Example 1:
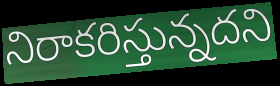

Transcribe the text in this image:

నిరాకరిస్తున్నదని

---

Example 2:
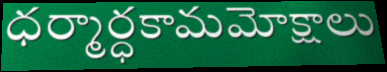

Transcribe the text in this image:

ధర్మార్ధకామమోక్షాలు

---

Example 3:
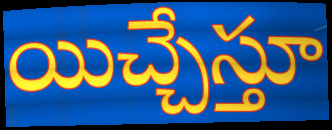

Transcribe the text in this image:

యిచ్చేస్తూ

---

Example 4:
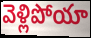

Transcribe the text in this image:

వెళ్లిపోయా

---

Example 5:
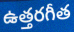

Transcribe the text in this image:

ఉత్తరగీత